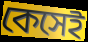
কেসেই